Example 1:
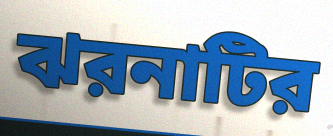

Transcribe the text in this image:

ঝরনাটির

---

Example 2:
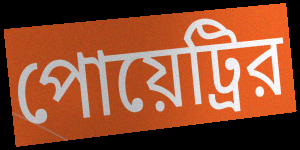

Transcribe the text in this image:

পোয়েট্রির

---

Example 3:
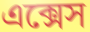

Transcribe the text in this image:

এক্সেস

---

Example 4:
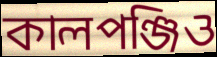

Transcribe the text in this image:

কালপঞ্জিও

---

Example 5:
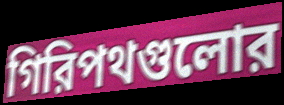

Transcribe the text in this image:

গিরিপথগুলোর